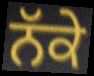
ਨੱਕੇ